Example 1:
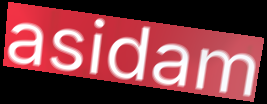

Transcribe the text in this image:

asidam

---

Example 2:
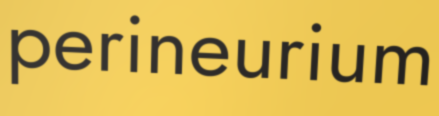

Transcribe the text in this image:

perineurium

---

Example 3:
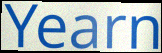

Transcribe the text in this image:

Yearn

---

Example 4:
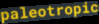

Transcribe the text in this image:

paleotropic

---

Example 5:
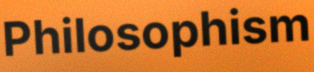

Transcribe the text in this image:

Philosophism